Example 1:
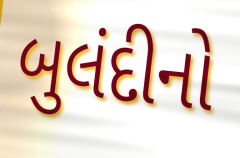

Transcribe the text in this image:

બુલંદીનો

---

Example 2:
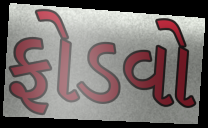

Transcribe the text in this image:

ફોડવો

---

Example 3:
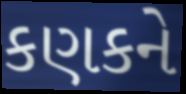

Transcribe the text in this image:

કણકને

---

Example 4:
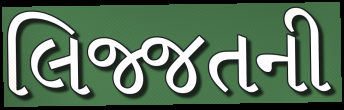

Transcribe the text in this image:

લિજ્જતની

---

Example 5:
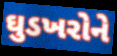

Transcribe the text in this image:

ઘુડખરોને